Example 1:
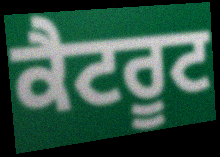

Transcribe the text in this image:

ਕੈਟਰੂਟ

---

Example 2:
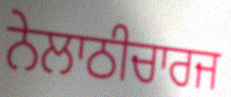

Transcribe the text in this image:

ਨੇਲਾਠੀਚਾਰਜ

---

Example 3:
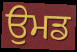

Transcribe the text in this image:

ਉਮਡ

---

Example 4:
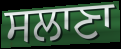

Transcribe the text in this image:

ਸਲਾਣਾ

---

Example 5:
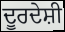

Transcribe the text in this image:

ਦੂਰਦੇਸ਼ੀ